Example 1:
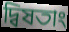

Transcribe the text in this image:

দ্বিষতাং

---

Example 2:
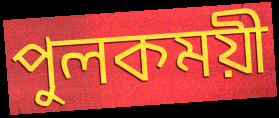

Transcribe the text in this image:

পুলকময়ী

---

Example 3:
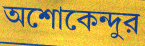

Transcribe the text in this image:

অশোকেন্দুর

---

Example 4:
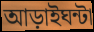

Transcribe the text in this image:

আড়াইঘন্টা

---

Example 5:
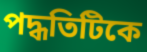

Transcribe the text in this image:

পদ্ধতিটিকে